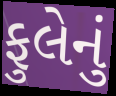
ફુલેનું